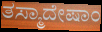
ತಸ್ಮಾದೇಷಾಂ